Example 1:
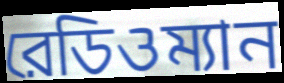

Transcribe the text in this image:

রেডিওম্যান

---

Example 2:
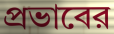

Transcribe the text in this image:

প্রভাবের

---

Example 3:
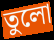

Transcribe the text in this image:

তুলো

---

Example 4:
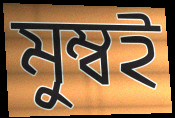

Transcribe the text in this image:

মুম্বই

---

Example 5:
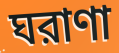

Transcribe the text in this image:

ঘরাণা